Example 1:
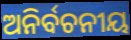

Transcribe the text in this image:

ଅନିର୍ବଚନୀୟ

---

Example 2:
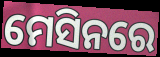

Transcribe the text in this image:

ମେସିନରେ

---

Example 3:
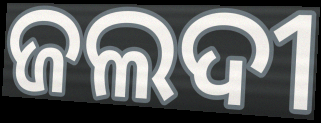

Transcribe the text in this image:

ଜଲଦୀ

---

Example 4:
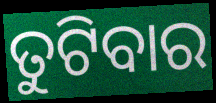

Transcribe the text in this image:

ତୁଟିବାର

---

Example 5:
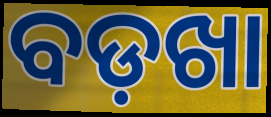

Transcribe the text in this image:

ବଡ଼ଖା